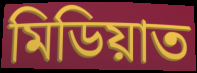
মিডিয়াত